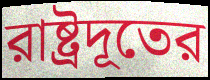
রাষ্ট্রদূতের